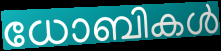
ധോബികൾ